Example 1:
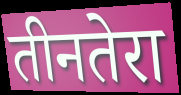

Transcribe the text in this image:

तीनतेरा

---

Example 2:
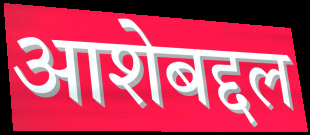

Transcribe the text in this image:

आशेबद्दल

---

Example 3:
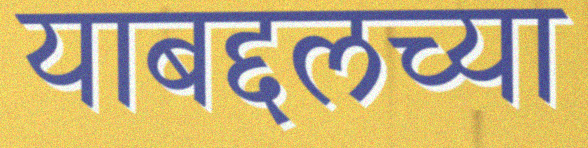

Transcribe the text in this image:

याबद्दलच्या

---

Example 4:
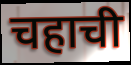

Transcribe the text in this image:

चहाची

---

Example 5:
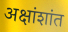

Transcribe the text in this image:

अक्षांशांत